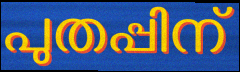
പുതപ്പിന്